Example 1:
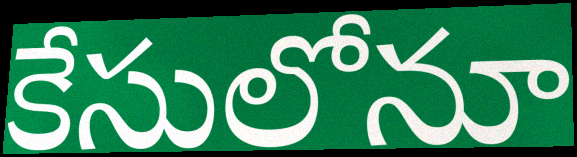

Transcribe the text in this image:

కేసులోనూ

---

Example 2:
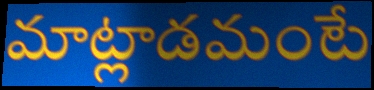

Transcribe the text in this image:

మాట్లాడమంటే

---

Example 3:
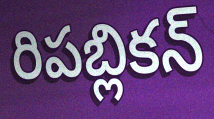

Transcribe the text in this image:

రిపబ్లికన్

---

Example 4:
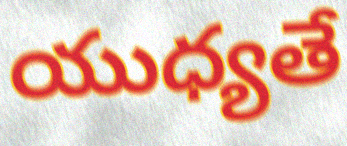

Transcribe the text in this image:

యుధ్యతే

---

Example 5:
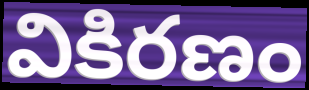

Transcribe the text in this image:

వికిరణం